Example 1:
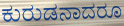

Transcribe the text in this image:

ಕುರುಡನಾದರೂ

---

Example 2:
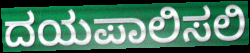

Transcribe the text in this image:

ದಯಪಾಲಿಸಲಿ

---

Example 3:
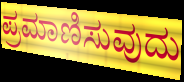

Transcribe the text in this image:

ಪ್ರಮಾಣಿಸುವುದು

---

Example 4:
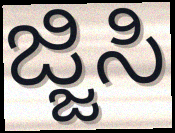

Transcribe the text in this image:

ಜ್ಜಿಸಿ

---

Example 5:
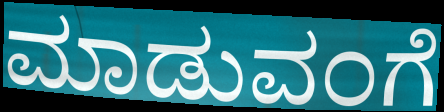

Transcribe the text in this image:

ಮಾಡುವಂಗೆ